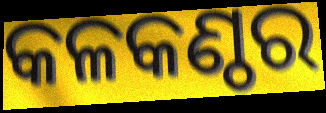
କଳକଣ୍ଠର